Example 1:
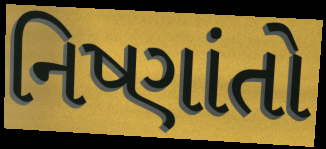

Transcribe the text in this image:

નિષ્ણાંતો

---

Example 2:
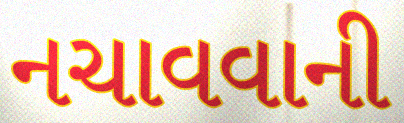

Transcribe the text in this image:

નચાવવાની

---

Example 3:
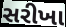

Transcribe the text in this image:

સરીખા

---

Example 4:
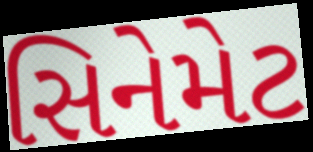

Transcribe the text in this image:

સિનેમેટ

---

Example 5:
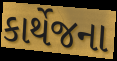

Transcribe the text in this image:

કાર્થેજના